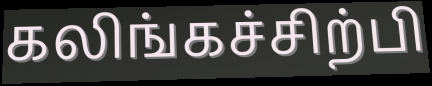
கலிங்கச்சிற்பி